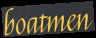
boatmen